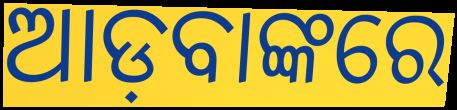
ଆଡ଼ବାଙ୍କରେ